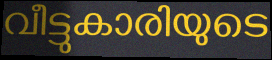
വീട്ടുകാരിയുടെ